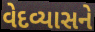
વેદવ્યાસને